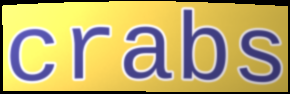
crabs